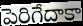
పెరిగేదాకా